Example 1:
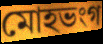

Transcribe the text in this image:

মোহভংগ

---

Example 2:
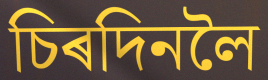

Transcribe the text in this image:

চিৰদিনলৈ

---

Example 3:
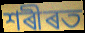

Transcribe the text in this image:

শৰীৰত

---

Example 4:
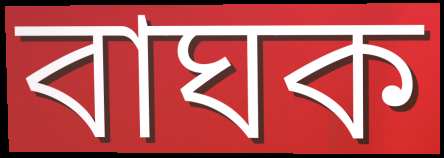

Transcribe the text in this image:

বাঘক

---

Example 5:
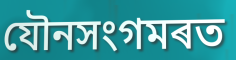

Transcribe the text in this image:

যৌনসংগমৰত